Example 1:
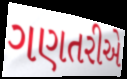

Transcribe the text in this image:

ગણતરીએ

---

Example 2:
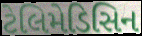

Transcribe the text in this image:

ટેલિમેડિસિન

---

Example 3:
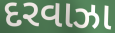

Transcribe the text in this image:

દરવાઝા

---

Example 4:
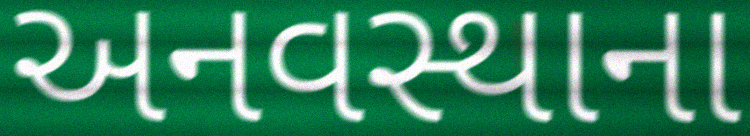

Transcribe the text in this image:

અનવસ્થાના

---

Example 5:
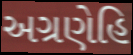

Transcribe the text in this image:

અગ્રણેહિ